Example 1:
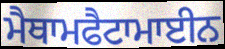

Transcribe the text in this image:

ਮੈਥਾਮਫੈਟਾਮਾਈਨ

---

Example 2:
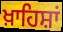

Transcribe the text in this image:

ਖ਼ਾਹਿਸ਼ਾਂ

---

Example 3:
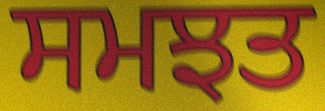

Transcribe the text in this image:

ਸਮਝਤ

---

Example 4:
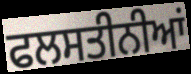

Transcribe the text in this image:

ਫਲਸਤੀਨੀਆਂ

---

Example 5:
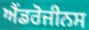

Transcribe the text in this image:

ਐਂਡਰੋਜੀਨਸ